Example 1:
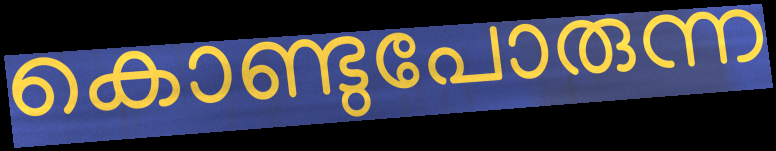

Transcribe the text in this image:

കൊണ്ടുപോരുന്ന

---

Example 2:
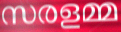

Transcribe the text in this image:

സരളമ്മ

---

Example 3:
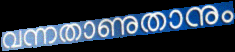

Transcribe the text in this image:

വന്നതാണുതാനും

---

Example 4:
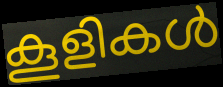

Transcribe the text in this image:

കൂളികൾ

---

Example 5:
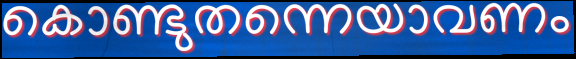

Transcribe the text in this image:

കൊണ്ടുതന്നെയാവണം